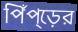
পিঁপ্‌ড়ের